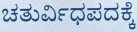
ಚತುರ್ವಿಧಪದಕ್ಕೆ